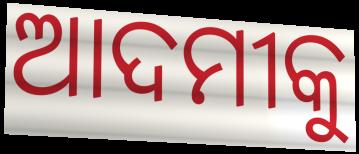
ଆଦମୀକୁ